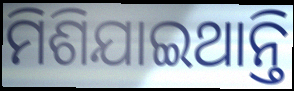
ମିଶିଯାଇଥାନ୍ତି